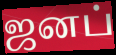
ஜனப்